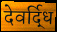
देवर्द्धि